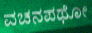
ವಚನಪಥೋ